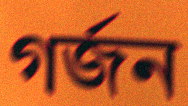
গৰ্জন